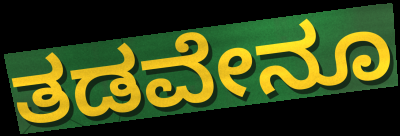
ತಡವೇನೂ